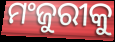
ମଂଜୁରୀକୁ